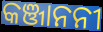
କଞ୍ଜାନନୀ